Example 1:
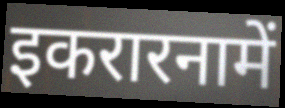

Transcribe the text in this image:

इकरारनामें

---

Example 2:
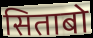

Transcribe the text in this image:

सिताबो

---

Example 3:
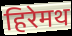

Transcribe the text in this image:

हिरेमथ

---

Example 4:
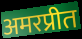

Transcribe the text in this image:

अमरप्रीत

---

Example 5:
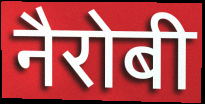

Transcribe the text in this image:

नैरोबी